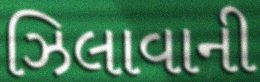
ઝિલાવાની